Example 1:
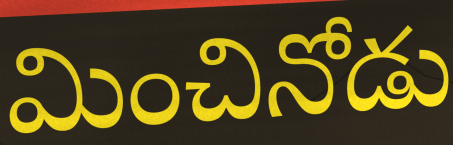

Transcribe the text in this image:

మించినోడు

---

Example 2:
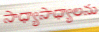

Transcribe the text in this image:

సాధ్యాసాధ్యాలను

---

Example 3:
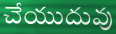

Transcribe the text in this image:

చేయుదువు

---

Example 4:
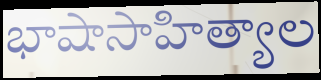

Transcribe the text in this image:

భాషాసాహిత్యాల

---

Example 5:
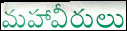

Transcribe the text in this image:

మహావీరులు